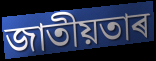
জাতীয়তাৰ